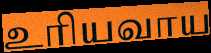
உரியவாய